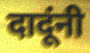
दादूंनी